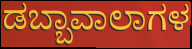
ಡಬ್ಬಾವಾಲಾಗಳ